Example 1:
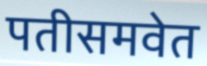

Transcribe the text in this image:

पतीसमवेत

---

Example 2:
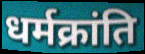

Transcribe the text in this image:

धर्मक्रांति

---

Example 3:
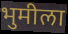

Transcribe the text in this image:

भुमीला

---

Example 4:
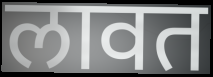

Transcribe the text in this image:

लावत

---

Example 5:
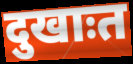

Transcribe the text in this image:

दुखाःत